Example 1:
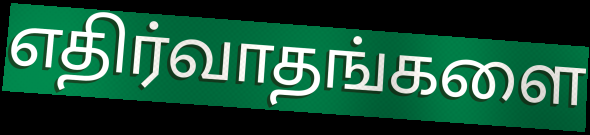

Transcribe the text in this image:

எதிர்வாதங்களை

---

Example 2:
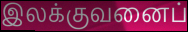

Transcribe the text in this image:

இலக்குவனைப்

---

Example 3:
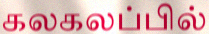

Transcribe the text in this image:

கலகலப்பில்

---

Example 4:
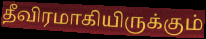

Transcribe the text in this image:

தீவிரமாகியிருக்கும்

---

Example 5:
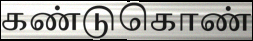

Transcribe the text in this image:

கண்டுகொண்